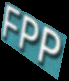
FPP